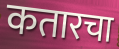
कतारचा